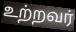
உற்றவர்